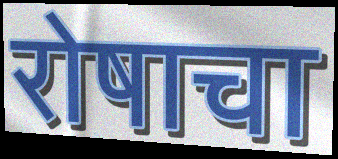
रोषाचा